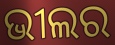
ଭୀଲର